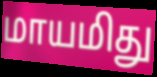
மாயமிது